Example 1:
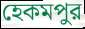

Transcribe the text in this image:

হেকমপুর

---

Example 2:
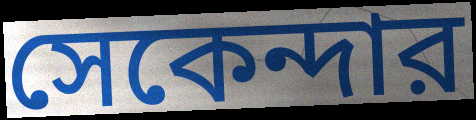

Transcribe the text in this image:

সেকেন্দার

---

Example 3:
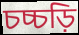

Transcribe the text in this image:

চচ্চড়ি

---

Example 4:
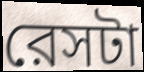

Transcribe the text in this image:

রেসটা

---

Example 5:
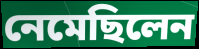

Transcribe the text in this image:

নেমেছিলেন